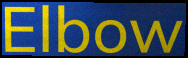
Elbow